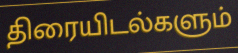
திரையிடல்களும்